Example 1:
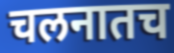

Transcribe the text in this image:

चलनातच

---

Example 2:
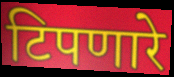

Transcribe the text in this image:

टिपणारे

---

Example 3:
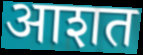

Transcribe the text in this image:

आशत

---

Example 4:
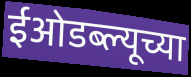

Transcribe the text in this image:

ईओडब्ल्यूच्या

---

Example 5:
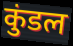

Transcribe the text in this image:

कुंडल